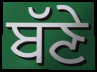
ਬੱਣੇ